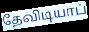
தேவிடியாப்